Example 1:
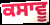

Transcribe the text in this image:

ਕਸਾਵੂ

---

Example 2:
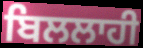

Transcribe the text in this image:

ਬਿਲਲਾਹੀ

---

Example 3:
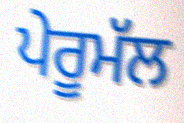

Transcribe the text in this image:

ਪੇਰੂਮੱਲ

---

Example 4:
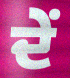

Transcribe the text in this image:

ਦੇਂ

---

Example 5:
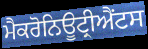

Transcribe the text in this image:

ਮੈਕਰੋਨਿਊਟ੍ਰੀਐਂਟਸ